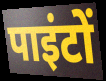
पाइंटों